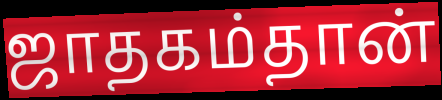
ஜாதகம்தான்